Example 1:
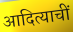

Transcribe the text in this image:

आदित्याचीं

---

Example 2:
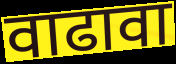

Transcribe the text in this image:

वाढावा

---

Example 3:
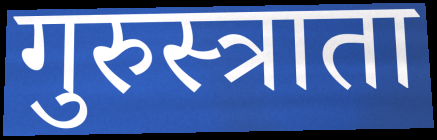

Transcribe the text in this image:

गुरुस्त्राता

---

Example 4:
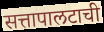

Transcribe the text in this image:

सत्तापालटाची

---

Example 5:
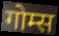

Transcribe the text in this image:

गोम्स